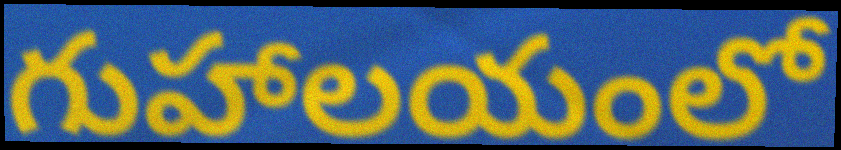
గుహాలయంలో